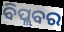
ବିପ୍ଲବର